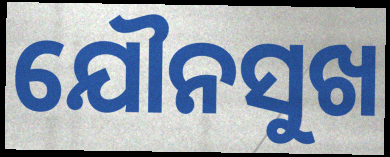
ଯୌନସୁଖ